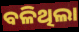
ବଳିଥିଲା